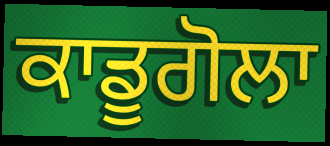
ਕਾਡੂਗੋਲਾ